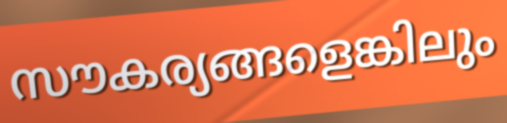
സൗകര്യങ്ങളെങ്കിലും